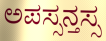
ಅಪಸ್ಸನ್ತಸ್ಸ